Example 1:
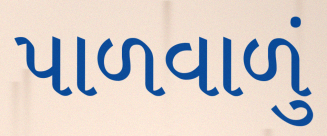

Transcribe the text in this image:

પાળવાળું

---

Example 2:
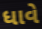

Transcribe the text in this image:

ધાવે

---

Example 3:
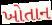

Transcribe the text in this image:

ખોતાન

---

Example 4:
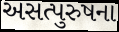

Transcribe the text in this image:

અસત્પુરુષના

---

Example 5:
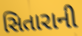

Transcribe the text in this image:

સિતારાની